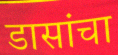
डासांचा